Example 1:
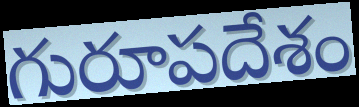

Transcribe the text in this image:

గురూపదేశం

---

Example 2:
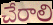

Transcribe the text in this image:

చేరాలి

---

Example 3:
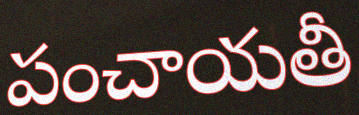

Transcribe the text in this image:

పంచాయతీ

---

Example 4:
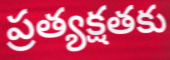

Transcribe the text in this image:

ప్రత్యక్షతకు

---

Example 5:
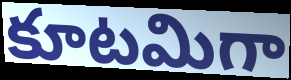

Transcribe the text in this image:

కూటమిగా